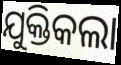
ଯୁକ୍ତିକଲା